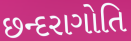
છન્દરાગોતિ